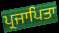
ਪ੍ਰਜਾਪਿਤਾ